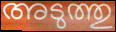
അടുത്തു